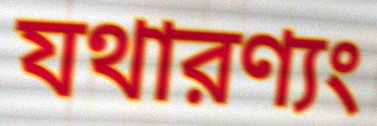
যথারণ্যং